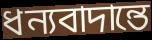
ধন্যবাদান্তে